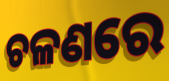
ଚଳଣରେ